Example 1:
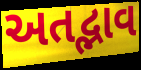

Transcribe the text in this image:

અતદ્ભાવ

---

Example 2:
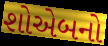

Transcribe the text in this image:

શોએબનો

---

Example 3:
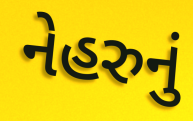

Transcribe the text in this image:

નેહરુનું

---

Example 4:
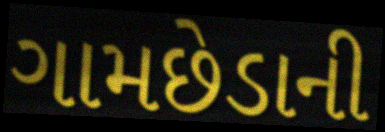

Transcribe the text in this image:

ગામછેડાની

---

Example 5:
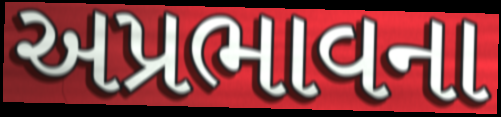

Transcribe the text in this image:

અપ્રભાવના